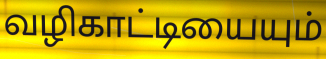
வழிகாட்டியையும்